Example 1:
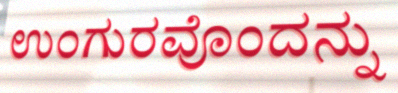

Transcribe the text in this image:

ಉಂಗುರವೊಂದನ್ನು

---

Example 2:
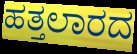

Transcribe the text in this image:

ಹತ್ತಲಾರದ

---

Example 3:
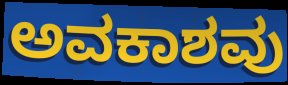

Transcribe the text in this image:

ಅವಕಾಶವು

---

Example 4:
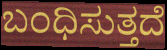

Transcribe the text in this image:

ಬಂಧಿಸುತ್ತದೆ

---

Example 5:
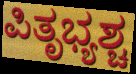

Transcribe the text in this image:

ಪಿತೃಭ್ಯಶ್ಚ